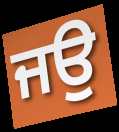
ਜਉ